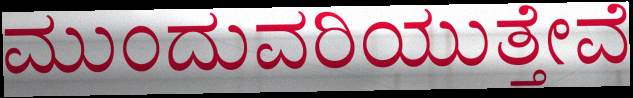
ಮುಂದುವರಿಯುತ್ತೇವೆ